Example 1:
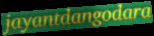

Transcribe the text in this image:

jayantdangodara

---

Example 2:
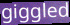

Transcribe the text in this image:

giggled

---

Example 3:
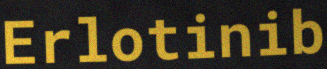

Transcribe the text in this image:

Erlotinib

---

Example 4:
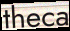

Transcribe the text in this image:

theca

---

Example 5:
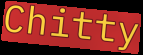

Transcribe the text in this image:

Chitty